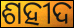
ଶହୀଦ